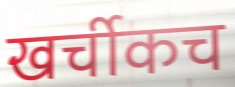
खर्चीकच